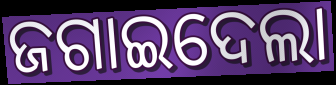
ଜଗାଇଦେଲା